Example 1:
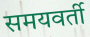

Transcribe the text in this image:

समयवर्ती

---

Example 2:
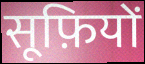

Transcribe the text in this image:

सूफ़ियों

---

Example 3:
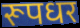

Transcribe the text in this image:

रूपधर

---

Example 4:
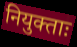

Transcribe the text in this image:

नियुक्ताः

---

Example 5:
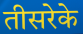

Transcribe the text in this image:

तीसरेके